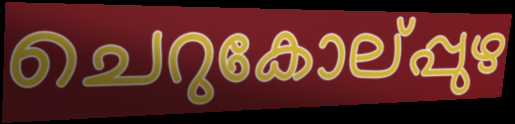
ചെറുകോല്പ്പുഴ